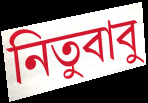
নিতুবাবু